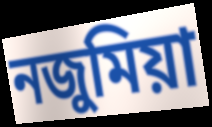
নজুমিয়া